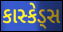
કાસ્કેડ્સ